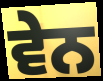
ਵੇਨ